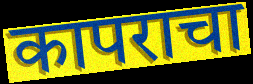
कापराचा